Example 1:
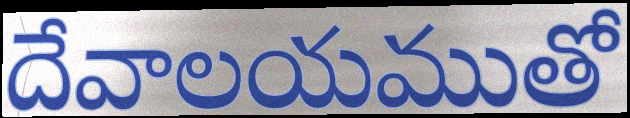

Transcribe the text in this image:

దేవాలయముతో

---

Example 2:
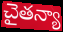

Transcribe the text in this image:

చైతన్యా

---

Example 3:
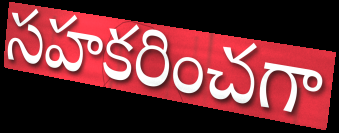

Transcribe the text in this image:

సహకరించగా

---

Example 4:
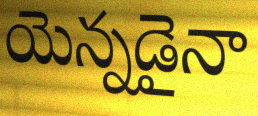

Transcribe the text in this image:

యెన్నడైనా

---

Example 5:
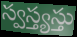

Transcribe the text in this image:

స్వస్త్యస్తు